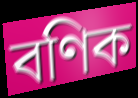
বণিক